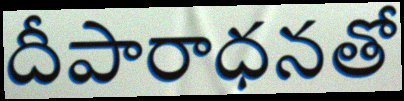
దీపారాధనతో